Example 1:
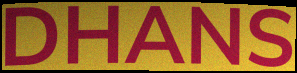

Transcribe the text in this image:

DHANS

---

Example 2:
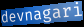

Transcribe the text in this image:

devnagari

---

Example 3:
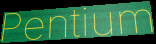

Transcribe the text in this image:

Pentium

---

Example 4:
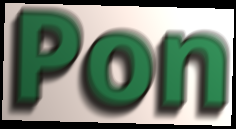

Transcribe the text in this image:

Pon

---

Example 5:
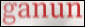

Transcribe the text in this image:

ganun